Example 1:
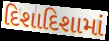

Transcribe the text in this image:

દિશાદિશામાં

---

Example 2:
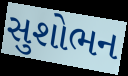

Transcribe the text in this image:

સુશોભન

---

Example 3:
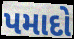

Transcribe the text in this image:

પમાદો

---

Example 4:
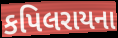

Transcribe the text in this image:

કપિલરાયના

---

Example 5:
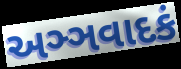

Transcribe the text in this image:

અઞ્ઞવાદકં